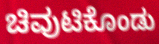
ಚಿವುಟಿಕೊಂಡು